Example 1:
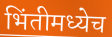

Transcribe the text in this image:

भिंतीमध्येच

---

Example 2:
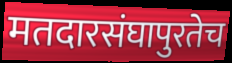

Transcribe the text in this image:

मतदारसंघापुरतेच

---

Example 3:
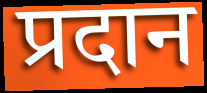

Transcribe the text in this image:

प्रदान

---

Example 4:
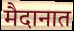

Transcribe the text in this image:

मैदानात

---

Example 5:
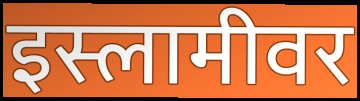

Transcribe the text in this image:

इस्लामीवर